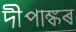
দীপাঙ্কৰ